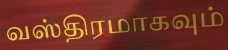
வஸ்திரமாகவும்